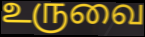
உருவை